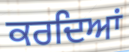
ਕਰਦਿਆਂ